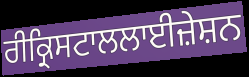
ਰੀਕ੍ਰਿਸਟਾਲਲਾਈਜ਼ੇਸ਼ਨ